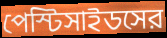
পেস্টিসাইডসের